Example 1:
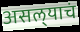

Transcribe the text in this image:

असल्याचं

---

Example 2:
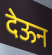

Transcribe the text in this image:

देऊन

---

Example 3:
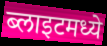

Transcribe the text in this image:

ब्लाइटमध्ये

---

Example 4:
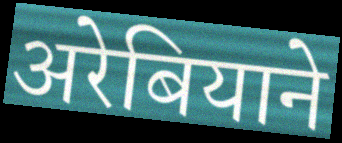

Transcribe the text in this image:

अरेबियाने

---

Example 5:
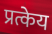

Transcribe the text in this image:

प्रत्केय